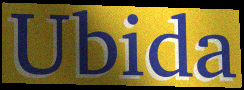
Ubida